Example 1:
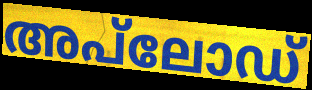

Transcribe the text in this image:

അപ്‌ലോഡ്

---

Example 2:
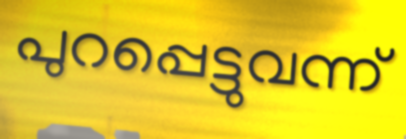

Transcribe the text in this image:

പുറപ്പെട്ടുവന്ന്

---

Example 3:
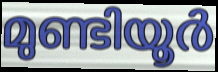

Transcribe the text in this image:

മുണ്ടിയൂർ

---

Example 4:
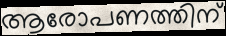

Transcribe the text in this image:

ആരോപണത്തിന്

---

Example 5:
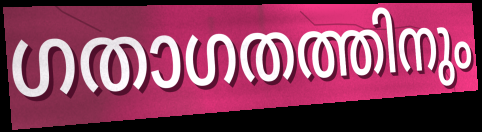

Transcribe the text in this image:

ഗതാഗതത്തിനും